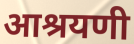
आश्रयणी